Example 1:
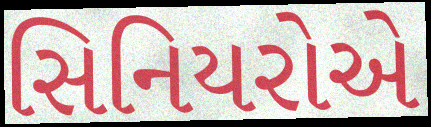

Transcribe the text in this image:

સિનિયરોએ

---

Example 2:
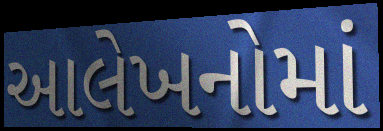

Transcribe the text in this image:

આલેખનોમાં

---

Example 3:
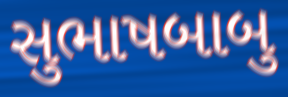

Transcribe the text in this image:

સુભાષબાબુ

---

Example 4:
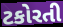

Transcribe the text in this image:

ટકોરતી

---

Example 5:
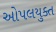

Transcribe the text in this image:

ઓપલયુક્ત